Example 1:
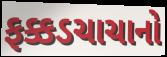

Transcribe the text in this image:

ફક્કડચાચાનો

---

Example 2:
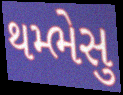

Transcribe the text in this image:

થમ્ભેસુ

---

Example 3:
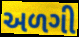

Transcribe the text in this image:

અળગી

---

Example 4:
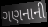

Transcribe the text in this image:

ગણનાની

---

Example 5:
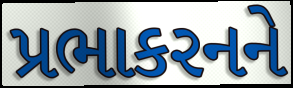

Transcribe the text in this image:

પ્રભાકરનને